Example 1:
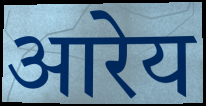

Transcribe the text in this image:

आरेय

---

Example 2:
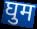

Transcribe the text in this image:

घुम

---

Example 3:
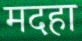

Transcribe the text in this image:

मदहा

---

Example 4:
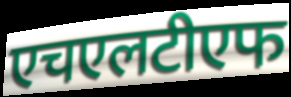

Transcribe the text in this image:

एचएलटीएफ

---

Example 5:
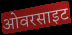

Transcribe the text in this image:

ओवरसाइट